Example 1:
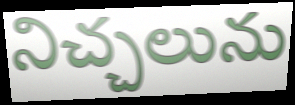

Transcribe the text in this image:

నిచ్చలును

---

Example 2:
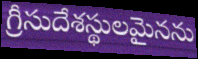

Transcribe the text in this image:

గ్రీసుదేశస్థులమైనను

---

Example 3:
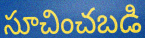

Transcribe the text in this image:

సూచించబడి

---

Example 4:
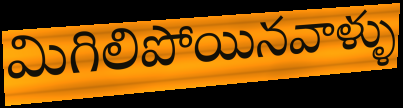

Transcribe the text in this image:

మిగిలిపోయినవాళ్ళు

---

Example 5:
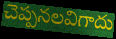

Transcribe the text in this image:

చెప్పనలవిగాదు